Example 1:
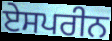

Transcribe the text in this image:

ਏਸਪਰੀਨ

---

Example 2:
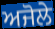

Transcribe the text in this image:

ਅਜੋਲੇ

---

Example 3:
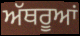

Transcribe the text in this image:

ਅੱਥਰੂਆਂ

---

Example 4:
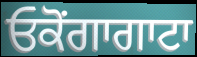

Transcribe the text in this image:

ਓਕੋਂਗਾਗਾਟਾ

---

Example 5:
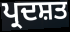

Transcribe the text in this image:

ਪ੍ਰਦਸ਼ਤ